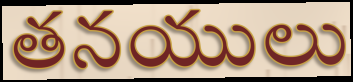
తనయులు